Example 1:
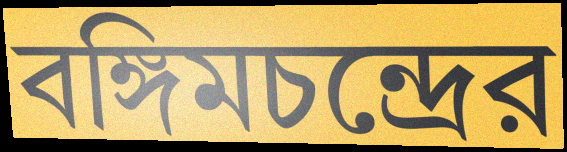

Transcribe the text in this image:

বঙ্গিমচন্দ্রের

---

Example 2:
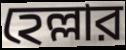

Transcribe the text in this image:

হেল্লার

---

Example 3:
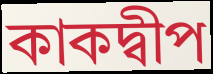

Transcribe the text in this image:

কাকদ্বীপ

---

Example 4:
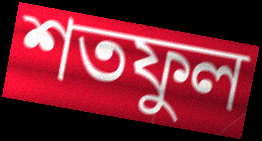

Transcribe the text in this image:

শতফুল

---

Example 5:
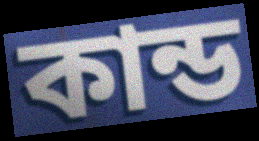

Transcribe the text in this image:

কান্ড